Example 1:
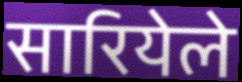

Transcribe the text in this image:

सारियेले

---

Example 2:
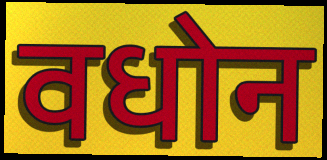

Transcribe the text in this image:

वधोन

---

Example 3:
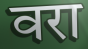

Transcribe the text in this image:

वरा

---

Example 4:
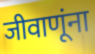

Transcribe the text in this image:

जीवाणूंना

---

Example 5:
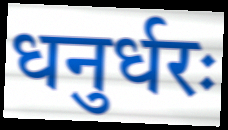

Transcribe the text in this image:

धनुर्धरः